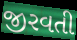
જીરવતી